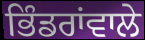
ਭਿੰਡਰਾਂਵਾਲੇ